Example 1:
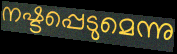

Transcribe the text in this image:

നഷ്ടപ്പെടുമെന്നു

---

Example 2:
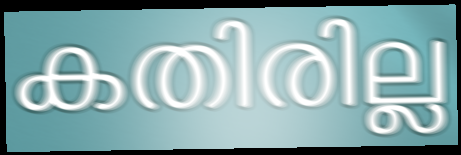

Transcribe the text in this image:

കതിരില്ല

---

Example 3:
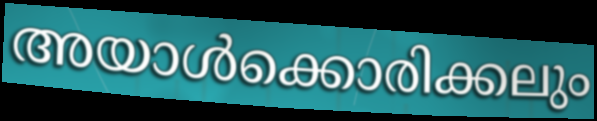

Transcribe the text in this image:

അയാൾക്കൊരിക്കലും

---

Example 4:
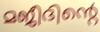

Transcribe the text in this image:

മജീദിന്റെ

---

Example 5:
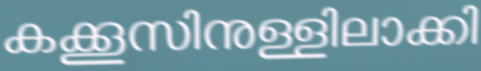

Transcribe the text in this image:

കക്കൂസിനുള്ളിലാക്കി